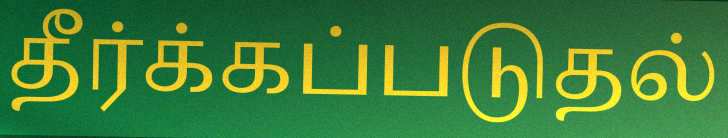
தீர்க்கப்படுதல்